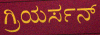
ಗ್ರಿಯರ್ಸನ್